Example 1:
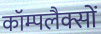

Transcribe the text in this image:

कॉम्पलैक्सों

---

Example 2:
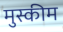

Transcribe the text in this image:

मुस्कीम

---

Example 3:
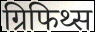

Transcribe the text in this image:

ग्रिफिथ्स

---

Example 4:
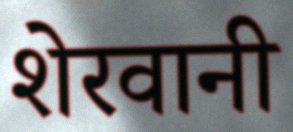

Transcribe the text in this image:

शेरवानी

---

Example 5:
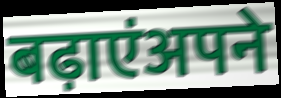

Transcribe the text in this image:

बढ़ाएंअपने